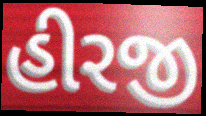
હીરજી